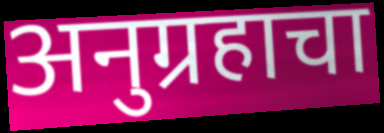
अनुग्रहाचा